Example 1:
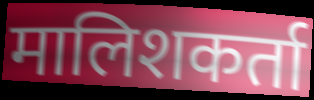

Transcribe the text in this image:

मालिशकर्ता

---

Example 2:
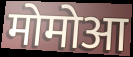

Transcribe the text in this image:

मोमोआ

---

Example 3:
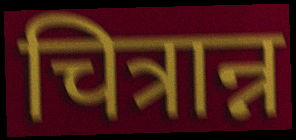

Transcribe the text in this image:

चित्रान्न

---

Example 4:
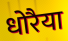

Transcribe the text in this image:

धोरैया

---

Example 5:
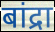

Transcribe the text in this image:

बांद्रा